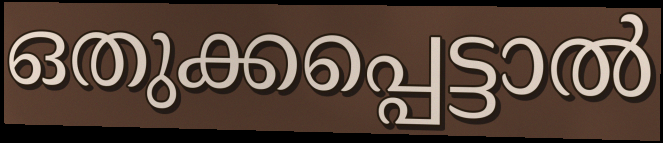
ഒതുക്കപ്പെട്ടാൽ